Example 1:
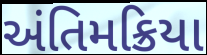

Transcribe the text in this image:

અંતિમક્રિયા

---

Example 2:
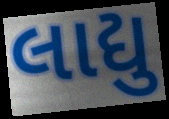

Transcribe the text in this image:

લાદ્યુ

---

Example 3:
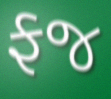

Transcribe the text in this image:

ફજ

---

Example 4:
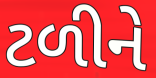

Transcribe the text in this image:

ટળીને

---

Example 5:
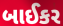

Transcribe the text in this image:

બાઈકર